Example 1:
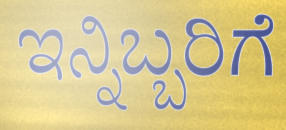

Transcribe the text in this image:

ಇನ್ನಿಬ್ಬರಿಗೆ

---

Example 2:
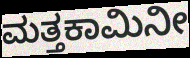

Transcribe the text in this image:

ಮತ್ತಕಾಮಿನೀ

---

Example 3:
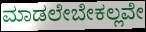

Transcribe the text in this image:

ಮಾಡಲೇಬೇಕಲ್ಲವೇ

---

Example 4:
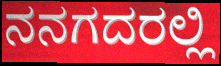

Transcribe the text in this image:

ನನಗದರಲ್ಲಿ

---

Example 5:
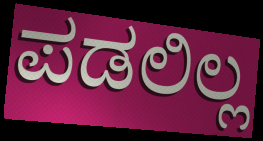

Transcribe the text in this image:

ಪಡಲಿಲ್ಲ